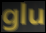
glu